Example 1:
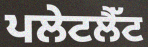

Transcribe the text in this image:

ਪਲੇਟਲੈੱਟ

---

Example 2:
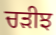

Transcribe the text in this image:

ਚੜੀਝ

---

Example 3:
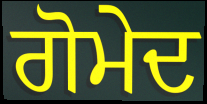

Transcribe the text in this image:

ਗੋਮੇਦ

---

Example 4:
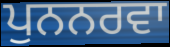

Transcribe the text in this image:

ਪੁਨਨਰਵਾ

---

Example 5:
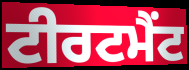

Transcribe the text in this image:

ਟੀਰਟਮੈਂਟ